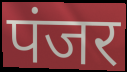
पंजर